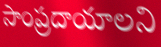
సాంప్రదాయాలని